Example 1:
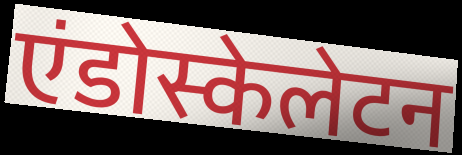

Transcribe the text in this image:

एंडोस्केलेटन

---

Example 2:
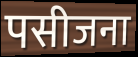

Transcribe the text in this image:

पसीजना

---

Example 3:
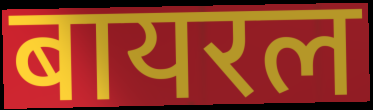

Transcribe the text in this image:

बायरल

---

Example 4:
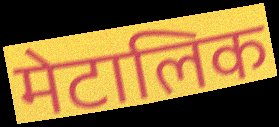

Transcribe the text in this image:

मेटालिक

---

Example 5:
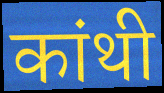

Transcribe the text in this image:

कांथी